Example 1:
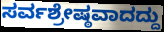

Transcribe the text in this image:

ಸರ್ವಶ್ರೇಷ್ಠವಾದದ್ದು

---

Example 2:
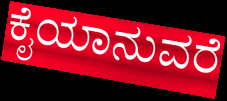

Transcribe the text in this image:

ಕೈಯಾನುವರೆ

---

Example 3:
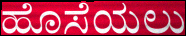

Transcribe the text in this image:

ಹೊಸೆಯಲು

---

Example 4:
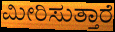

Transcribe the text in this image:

ಮೀರಿಸುತ್ತಾರೆ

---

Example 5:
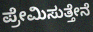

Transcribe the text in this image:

ಪ್ರೇಮಿಸುತ್ತೇನೆ